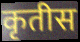
कृतीस